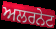
ਅਲਰਨੇਟ